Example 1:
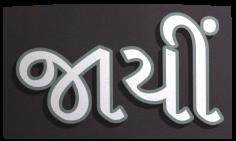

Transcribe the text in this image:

જાયીં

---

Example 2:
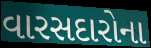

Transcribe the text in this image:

વારસદારોના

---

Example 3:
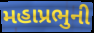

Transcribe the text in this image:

મહાપ્રભુની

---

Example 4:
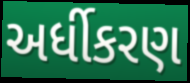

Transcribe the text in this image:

અર્ધીકરણ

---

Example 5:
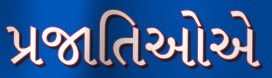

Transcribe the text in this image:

પ્રજાતિઓએ